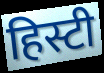
हिस्टी